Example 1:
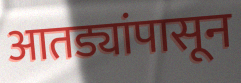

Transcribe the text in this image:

आतड्यांपासून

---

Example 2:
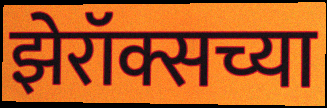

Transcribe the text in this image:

झेरॉक्सच्या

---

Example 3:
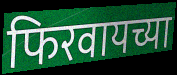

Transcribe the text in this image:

फिरवायच्या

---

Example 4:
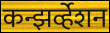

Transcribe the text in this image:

कन्झर्व्हेशन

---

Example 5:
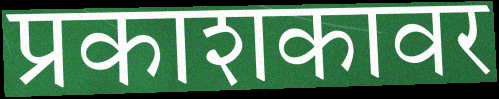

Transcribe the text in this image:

प्रकाशकावर